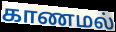
காணமல்